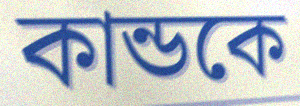
কান্ডকে